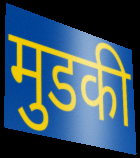
मुडकी